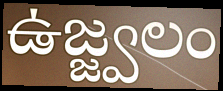
ఉజ్జ్వలం